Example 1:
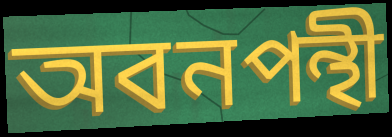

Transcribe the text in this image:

অবনপন্থী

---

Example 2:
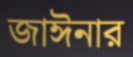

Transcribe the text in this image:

জাঈনার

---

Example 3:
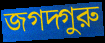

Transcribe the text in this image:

জগদ্গুরু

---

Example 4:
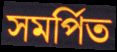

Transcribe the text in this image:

সমর্পিত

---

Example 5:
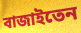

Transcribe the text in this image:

বাজাইতেন